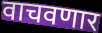
वाचवणार